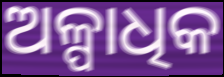
ଅଳ୍ପାଧିକ